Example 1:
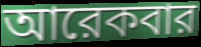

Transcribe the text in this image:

আরেকবার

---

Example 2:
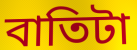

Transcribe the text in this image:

বাতিটা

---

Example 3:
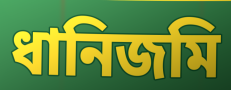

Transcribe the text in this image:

ধানিজমি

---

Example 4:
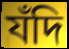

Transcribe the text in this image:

যঁদি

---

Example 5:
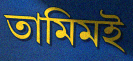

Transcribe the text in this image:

তামিমই